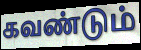
கவண்டும்